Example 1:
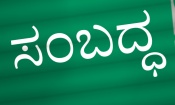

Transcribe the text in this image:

ಸಂಬದ್ಧ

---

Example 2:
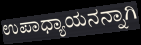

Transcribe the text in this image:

ಉಪಾಧ್ಯಾಯನನ್ನಾಗಿ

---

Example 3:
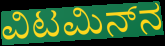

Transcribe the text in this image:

ವಿಟಮಿನ್‌ನ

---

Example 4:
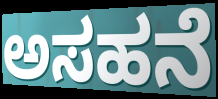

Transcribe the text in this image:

ಅಸಹನೆ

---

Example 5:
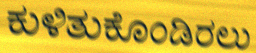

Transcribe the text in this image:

ಕುಳಿತುಕೊಂಡಿರಲು